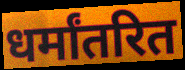
धर्मांतरित